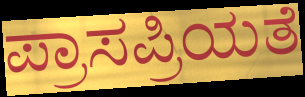
ಪ್ರಾಸಪ್ರಿಯತೆ